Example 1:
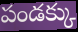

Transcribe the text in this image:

పండక్కు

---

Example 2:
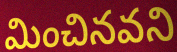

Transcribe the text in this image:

మించినవని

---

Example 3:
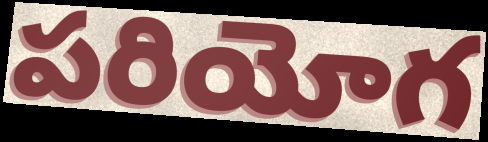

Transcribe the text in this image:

పరియోగ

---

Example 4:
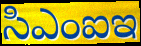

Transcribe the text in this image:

సిఎంఐఇ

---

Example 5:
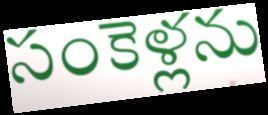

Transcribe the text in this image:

సంకెళ్లను